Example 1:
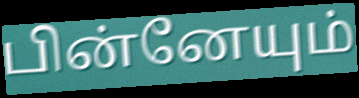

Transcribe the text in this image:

பின்னேயும்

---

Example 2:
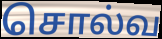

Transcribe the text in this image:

சொல்வ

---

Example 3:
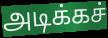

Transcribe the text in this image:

அடிக்கச்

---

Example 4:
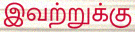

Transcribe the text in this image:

இவற்றுக்கு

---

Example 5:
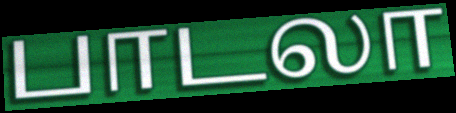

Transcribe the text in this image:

பாடலா